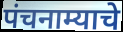
पंचनाम्याचे